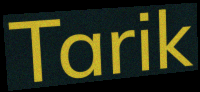
Tarik